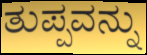
ತುಪ್ಪವನ್ನು